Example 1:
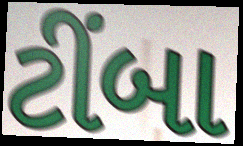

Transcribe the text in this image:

ટીંબા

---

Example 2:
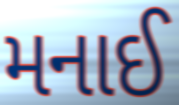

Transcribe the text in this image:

મનાઈ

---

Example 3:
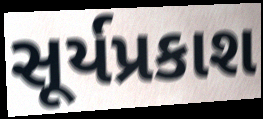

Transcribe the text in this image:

સૂર્યપ્રકાશ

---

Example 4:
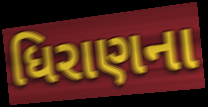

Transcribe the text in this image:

ધિરાણના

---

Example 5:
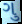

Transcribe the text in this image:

ગુ